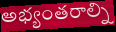
అభ్యంతరాల్ని